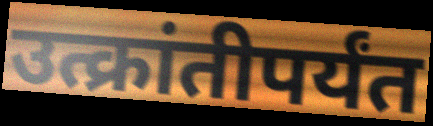
उत्क्रांतीपर्यंत